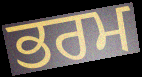
ਭਰਮ